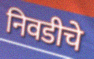
निवडीचे